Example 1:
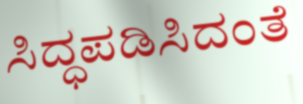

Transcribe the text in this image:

ಸಿದ್ಧಪಡಿಸಿದಂತೆ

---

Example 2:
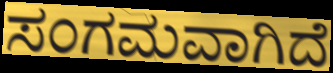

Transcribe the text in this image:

ಸಂಗಮವಾಗಿದೆ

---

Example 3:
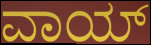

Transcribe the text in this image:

ವಾಯ್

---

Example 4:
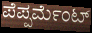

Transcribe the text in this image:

ಪೆಪ್ಪರ್ಮೆಂಟ್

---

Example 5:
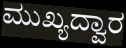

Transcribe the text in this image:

ಮುಖ್ಯದ್ವಾರ